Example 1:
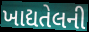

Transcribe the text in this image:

ખાદ્યતેલની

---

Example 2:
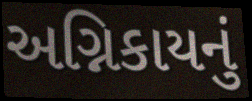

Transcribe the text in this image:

અગ્નિકાયનું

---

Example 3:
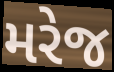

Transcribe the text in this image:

મરેજ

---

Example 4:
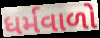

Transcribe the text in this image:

ધર્મવાળો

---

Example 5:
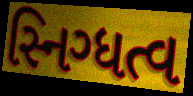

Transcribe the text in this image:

સ્નિગ્ધત્વ